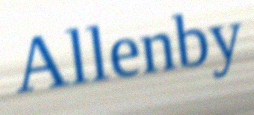
Allenby